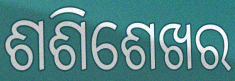
ଶଶିଶେଖର